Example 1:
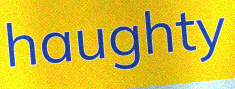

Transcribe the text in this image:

haughty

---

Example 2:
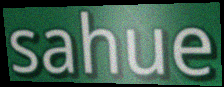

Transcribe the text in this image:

sahue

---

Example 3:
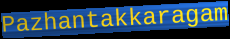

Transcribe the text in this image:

Pazhantakkaragam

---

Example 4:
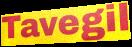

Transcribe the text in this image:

Tavegil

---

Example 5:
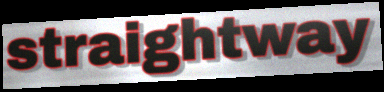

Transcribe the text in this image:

straightway